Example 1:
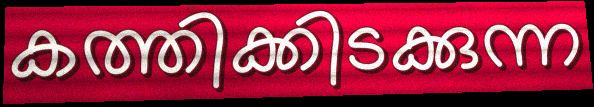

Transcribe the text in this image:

കത്തിക്കിടക്കുന്ന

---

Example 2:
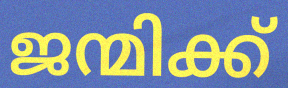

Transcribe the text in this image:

ജന്മിക്ക്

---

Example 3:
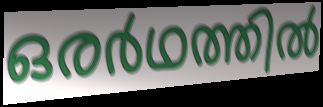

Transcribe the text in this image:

ഒരർഥത്തിൽ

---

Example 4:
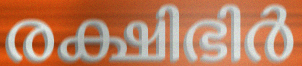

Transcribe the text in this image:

രക്ഷിഭിർ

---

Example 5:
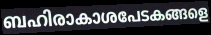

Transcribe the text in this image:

ബഹിരാകാശപേടകങ്ങളെ